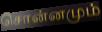
சொன்னமும்